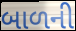
બાળની